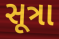
સૂત્રા